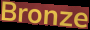
Bronze